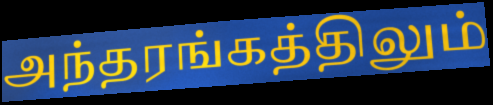
அந்தரங்கத்திலும்